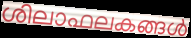
ശിലാഫലകങ്ങൾ